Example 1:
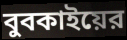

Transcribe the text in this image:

বুবকাইয়ের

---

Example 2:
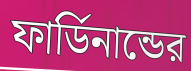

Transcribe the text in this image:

ফার্ডিনান্ডের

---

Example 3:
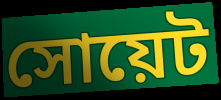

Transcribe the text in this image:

সোয়েট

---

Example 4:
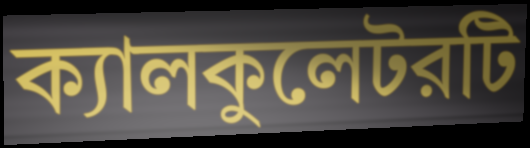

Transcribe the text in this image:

ক্যালকুলেটরটি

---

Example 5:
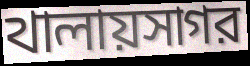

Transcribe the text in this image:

থালায়সাগর